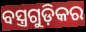
ବସ୍ତ୍ରଗୁଡ଼ିକର